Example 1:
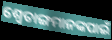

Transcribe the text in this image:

ଶ୍ୱେତାଙ୍ଗମାନଙ୍କପାଇଁ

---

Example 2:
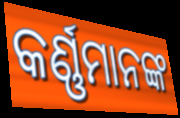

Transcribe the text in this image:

କର୍ଣ୍ଣମାନଙ୍କ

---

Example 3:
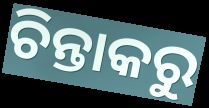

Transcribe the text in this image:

ଚିନ୍ତାକରୁ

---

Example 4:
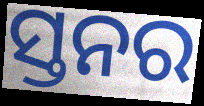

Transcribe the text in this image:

ସ୍ତନର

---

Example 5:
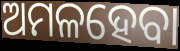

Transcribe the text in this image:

ଅମଳହେବା